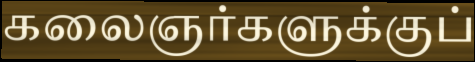
கலைஞர்களுக்குப்